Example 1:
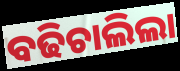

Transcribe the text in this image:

ବଢିଚାଲିଲା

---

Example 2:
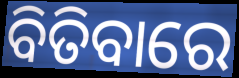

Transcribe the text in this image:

ବିତିବାରେ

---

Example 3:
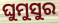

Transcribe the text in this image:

ଘୁମୁସୁର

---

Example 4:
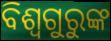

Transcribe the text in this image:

ବିଶ୍ୱଗୁରୁଙ୍କ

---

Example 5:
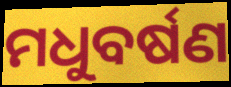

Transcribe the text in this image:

ମଧୁବର୍ଷଣ